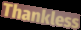
Thankless